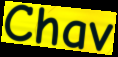
Chav